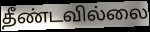
தீண்டவில்லை